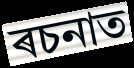
ৰচনাত